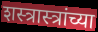
शस्त्रास्त्रांच्या